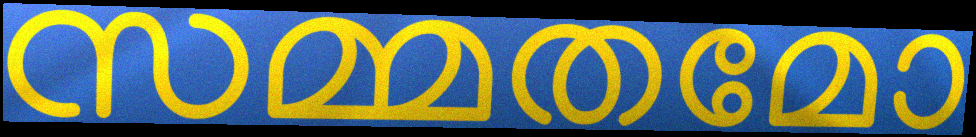
സമ്മതമോ